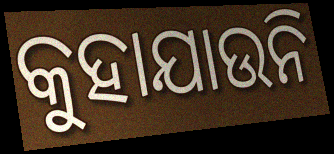
କୁହାଯାଉନି